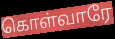
கொள்வாரே